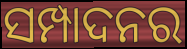
ସମ୍ପାଦନର